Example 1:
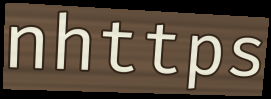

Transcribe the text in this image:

nhttps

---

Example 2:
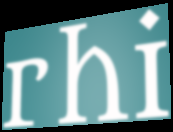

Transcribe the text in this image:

rhi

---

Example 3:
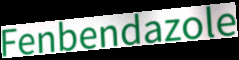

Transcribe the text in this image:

Fenbendazole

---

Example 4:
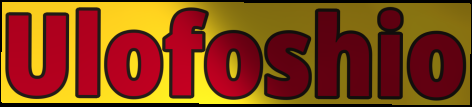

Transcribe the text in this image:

Ulofoshio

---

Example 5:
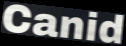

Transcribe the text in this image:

Canid